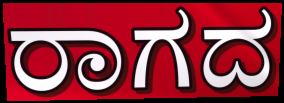
ರಾಗದ